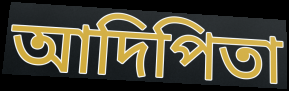
আদিপিতা